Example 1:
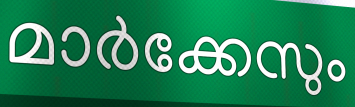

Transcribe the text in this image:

മാർക്കേസും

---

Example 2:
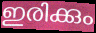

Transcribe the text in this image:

ഇരിക്കും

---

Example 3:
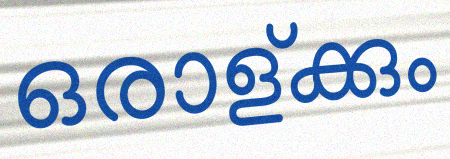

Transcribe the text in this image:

ഒരാള്ക്കും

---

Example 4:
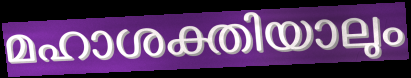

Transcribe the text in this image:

മഹാശക്തിയാലും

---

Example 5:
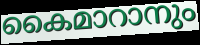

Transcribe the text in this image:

കൈമാറാനും